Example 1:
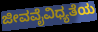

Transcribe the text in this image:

ಜೀವವೈವಿಧ್ಯತೆಯ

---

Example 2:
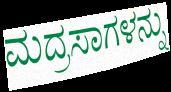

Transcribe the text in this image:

ಮದ್ರಸಾಗಳನ್ನು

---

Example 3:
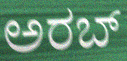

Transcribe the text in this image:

ಅರಬ್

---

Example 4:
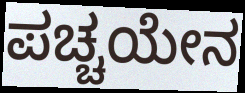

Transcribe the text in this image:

ಪಚ್ಚಯೇನ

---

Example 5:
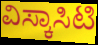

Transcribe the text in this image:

ವಿಸ್ಕಾಸಿಟಿ